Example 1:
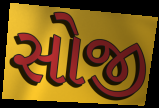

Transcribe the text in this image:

સોજી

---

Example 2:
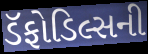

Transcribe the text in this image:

ડૅફોડિલ્સની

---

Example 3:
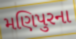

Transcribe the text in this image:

મણિપુરના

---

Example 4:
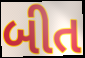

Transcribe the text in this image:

બીત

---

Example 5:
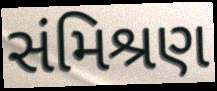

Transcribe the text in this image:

સંમિશ્રણ